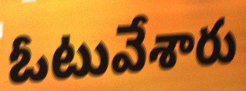
ఓటువేశారు